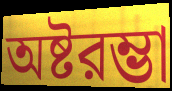
অষ্টরম্ভা